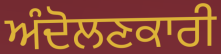
ਅੰਦੋਲਣਕਾਰੀ